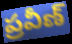
ప్రవీణ్